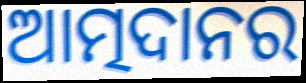
ଆତ୍ମଦାନର